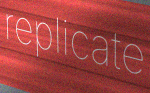
replicate